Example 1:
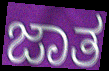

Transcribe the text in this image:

ಜಾತ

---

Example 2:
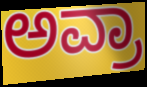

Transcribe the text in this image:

ಅವ್ರಾ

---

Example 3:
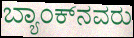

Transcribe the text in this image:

ಬ್ಯಾಂಕ್‌ನವರು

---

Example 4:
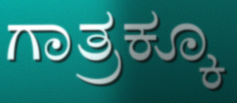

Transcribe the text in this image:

ಗಾತ್ರಕ್ಕೂ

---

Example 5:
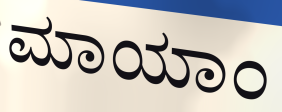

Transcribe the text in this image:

ಮಾಯಾಂ